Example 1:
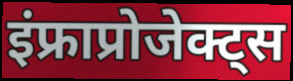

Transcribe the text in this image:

इंफ्राप्रोजेक्ट्स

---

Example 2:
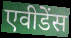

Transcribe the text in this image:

एवीडेंस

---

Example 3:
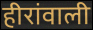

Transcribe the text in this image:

हीरांवाली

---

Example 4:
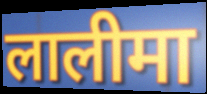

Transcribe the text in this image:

लालीमा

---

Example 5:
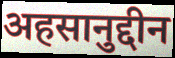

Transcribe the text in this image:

अहसानुद्दीन